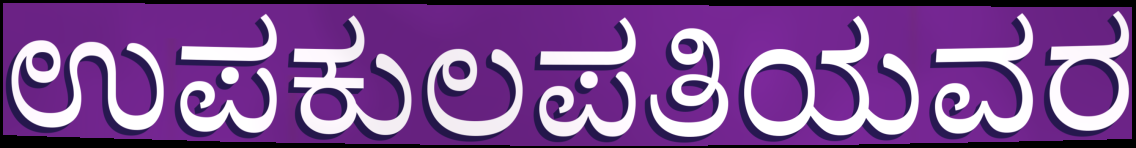
ಉಪಕುಲಪತಿಯವರ